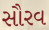
સૌરવ